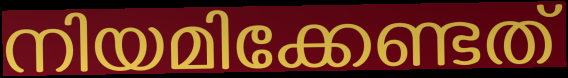
നിയമിക്കേണ്ടത്